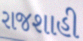
રાજશાહી